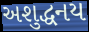
અશુદ્ધનય